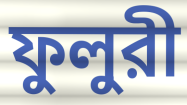
ফুলুরী